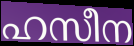
ഹസീന